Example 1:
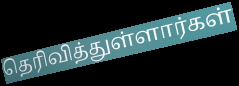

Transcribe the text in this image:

தெரிவித்துள்ளார்கள்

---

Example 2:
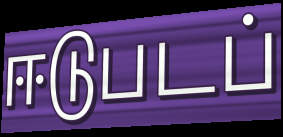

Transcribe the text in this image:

ஈடுபடப்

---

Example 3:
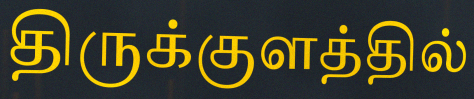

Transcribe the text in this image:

திருக்குளத்தில்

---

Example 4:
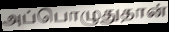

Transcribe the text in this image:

அப்பொழுதுதான்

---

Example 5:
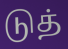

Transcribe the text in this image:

டுத்